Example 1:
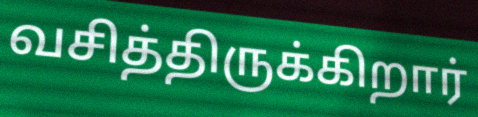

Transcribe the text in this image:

வசித்திருக்கிறார்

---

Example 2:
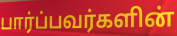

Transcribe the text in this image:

பார்ப்பவர்களின்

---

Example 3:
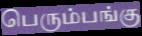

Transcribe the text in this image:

பெரும்பங்கு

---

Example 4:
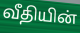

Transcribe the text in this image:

வீதியின்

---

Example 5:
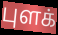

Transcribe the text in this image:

புளக்